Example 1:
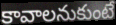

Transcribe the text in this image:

కావాలనుకుంటే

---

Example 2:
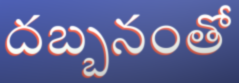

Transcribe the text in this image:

దబ్బనంతో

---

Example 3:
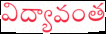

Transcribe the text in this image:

విద్యావంత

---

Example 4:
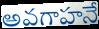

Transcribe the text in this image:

అవగాహనే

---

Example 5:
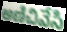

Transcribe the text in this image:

అణిచివేసి